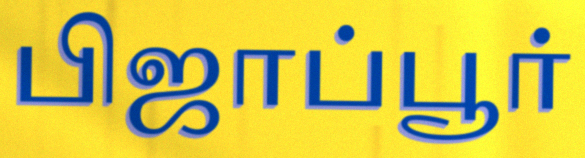
பிஜாப்பூர்